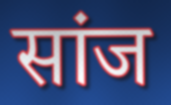
सांज